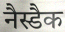
नैस्डैक